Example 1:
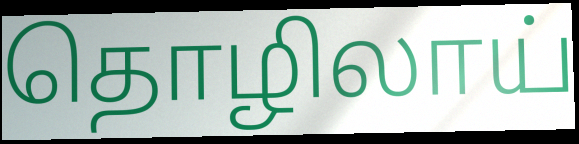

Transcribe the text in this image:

தொழிலாய்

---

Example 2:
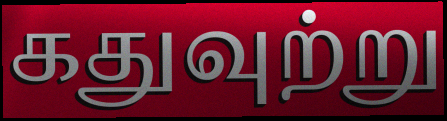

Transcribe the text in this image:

கதுவுற்று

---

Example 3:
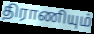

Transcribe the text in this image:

திராணியும்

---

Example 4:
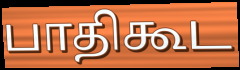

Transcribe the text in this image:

பாதிகூட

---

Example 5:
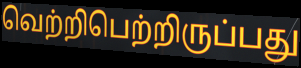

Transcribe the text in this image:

வெற்றிபெற்றிருப்பது